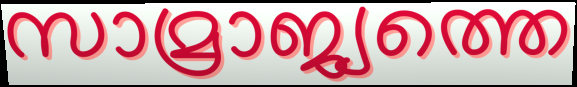
സാമ്രാജ്യത്തെ